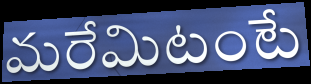
మరేమిటంటే